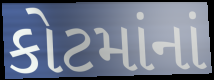
કોટમાંનાં